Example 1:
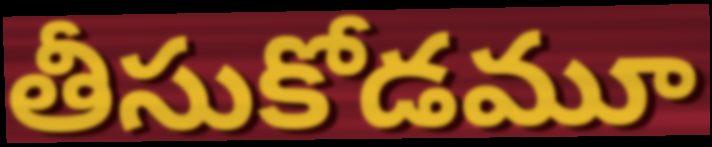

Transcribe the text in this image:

తీసుకోడమూ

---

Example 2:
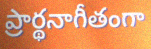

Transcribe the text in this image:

ప్రార్థనాగీతంగా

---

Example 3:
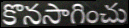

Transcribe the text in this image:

కొనసాగించు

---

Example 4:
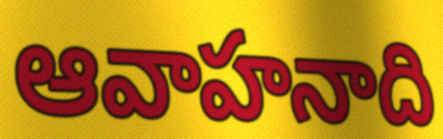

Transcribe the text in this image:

ఆవాహనాది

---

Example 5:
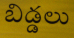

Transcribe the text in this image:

బిడ్డలు